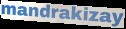
mandrakizay